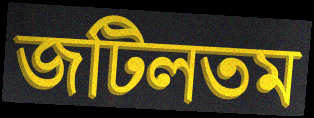
জটিলতম